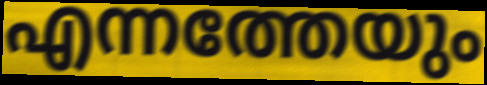
എന്നത്തേയും